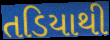
તડિયાથી